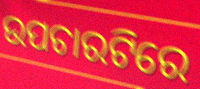
ଉପଚାରଟିରେ